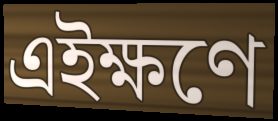
এইক্ষণে